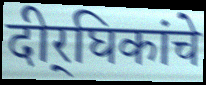
दीर्घिकांचे